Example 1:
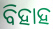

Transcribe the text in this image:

ବିହାହ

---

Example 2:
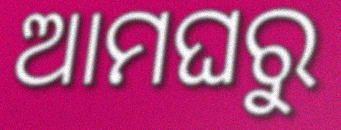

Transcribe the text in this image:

ଆମଘରୁ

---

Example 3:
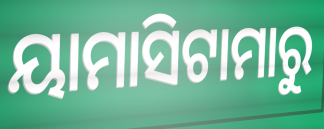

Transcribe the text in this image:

ୟାମାସିଟାମାରୁ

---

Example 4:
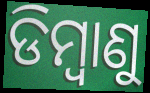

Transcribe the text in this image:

ଡିମ୍ୱାଣୁ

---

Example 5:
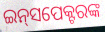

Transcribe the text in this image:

ଇନ୍‍ସପେକ୍ଟରଙ୍କ